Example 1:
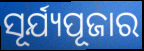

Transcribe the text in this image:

ସୂର୍ଯ୍ୟପୂଜାର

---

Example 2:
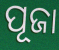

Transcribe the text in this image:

ପୂଜା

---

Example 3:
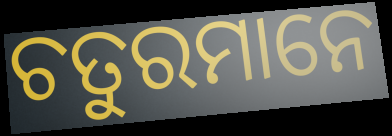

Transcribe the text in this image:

ଚତୁରମାନେ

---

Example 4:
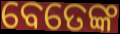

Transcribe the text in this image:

ବେତେଙ୍କ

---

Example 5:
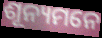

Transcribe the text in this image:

ଶୂନ୍ୟମନେ